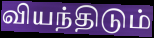
வியந்திடும்